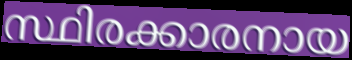
സ്ഥിരക്കാരനായ